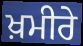
ਖ਼ਮੀਰੇ